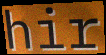
hir